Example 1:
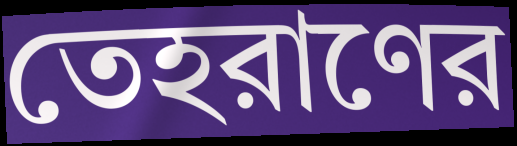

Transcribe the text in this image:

তেহরাণের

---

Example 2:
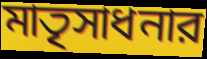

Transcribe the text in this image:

মাতৃসাধনার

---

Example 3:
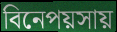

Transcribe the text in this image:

বিনেপয়সায়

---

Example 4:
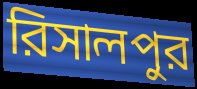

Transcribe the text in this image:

রিসালপুর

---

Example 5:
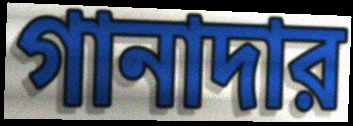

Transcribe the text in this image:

গানাদার